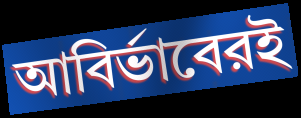
আবির্ভাবেরই